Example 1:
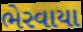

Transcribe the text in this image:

ભેરવાયા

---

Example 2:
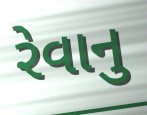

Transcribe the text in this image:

રેવાનુ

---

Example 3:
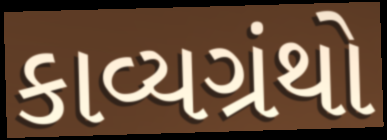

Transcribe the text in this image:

કાવ્યગ્રંથો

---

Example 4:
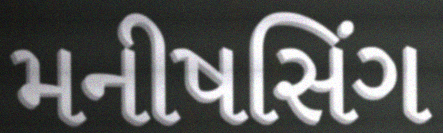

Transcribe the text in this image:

મનીષસિંગ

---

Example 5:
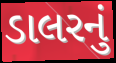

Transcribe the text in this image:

ડાલરનું